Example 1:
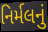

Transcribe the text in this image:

નિર્મલનું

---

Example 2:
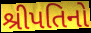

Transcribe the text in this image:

શ્રીપતિનો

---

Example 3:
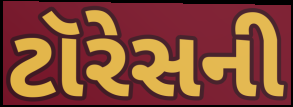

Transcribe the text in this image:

ટૉરેસની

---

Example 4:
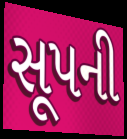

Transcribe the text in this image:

સૂપની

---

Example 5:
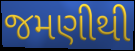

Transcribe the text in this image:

જમણીથી